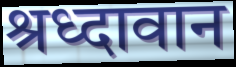
श्रध्दावान